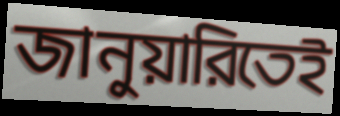
জানুয়ারিতেই